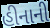
હીનાની